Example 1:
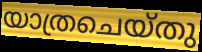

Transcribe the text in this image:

യാത്രചെയ്തു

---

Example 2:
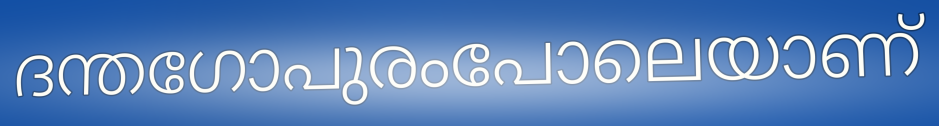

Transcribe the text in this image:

ദന്തഗോപുരംപോലെയാണ്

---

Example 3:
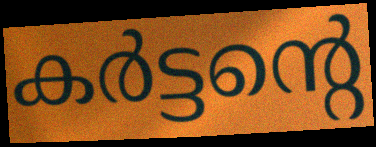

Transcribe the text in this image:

കർട്ടന്റെ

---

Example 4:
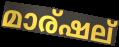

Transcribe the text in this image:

മാര്ഷല്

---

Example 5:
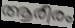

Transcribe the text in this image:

ആരീരം